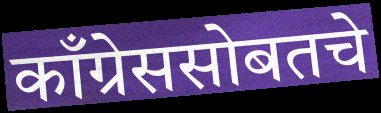
काँग्रेससोबतचे